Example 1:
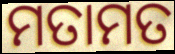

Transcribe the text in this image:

ମତାମତ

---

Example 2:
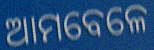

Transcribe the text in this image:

ଆମବେଳେ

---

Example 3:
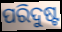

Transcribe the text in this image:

ପରିଦୁଷ୍ଟ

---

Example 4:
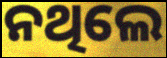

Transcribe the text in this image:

ନଥିଲେ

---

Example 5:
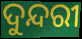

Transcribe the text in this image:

ଦୁନ୍ଦରୀ